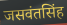
जसवंतसिंह